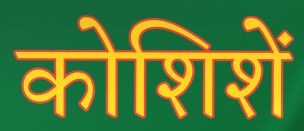
कोशिशें